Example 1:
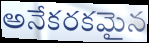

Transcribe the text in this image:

అనేకరకమైన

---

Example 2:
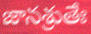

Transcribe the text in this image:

జానశ్రుతేః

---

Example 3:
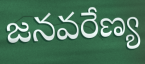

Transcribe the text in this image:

జనవరేణ్య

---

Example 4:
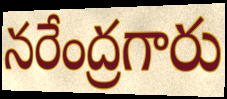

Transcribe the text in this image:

నరేంద్రగారు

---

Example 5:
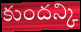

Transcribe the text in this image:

కుందన్కి